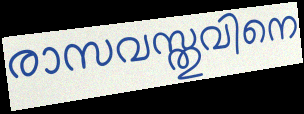
രാസവസ്തുവിനെ